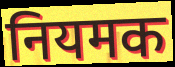
नियमक